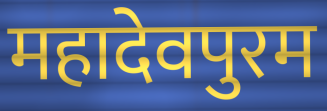
महादेवपुरम